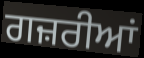
ਗਜ਼ਰੀਆਂ